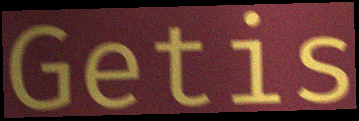
Getis